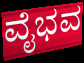
ವೈಭವ